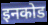
इनकोड